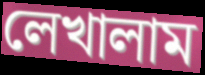
লেখালাম